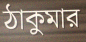
ঠাকুমার